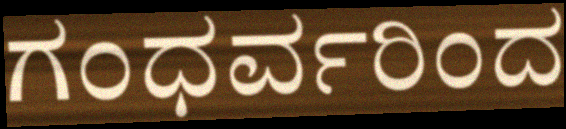
ಗಂಧರ್ವರಿಂದ